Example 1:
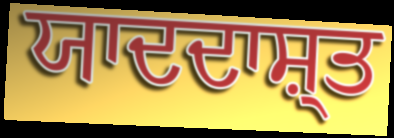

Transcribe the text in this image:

ਯਾਦਦਾਸ਼੍ਤ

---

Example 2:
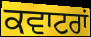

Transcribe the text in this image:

ਕਵਾਟਰਾਂ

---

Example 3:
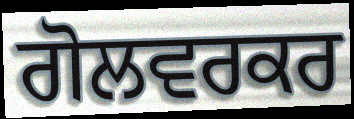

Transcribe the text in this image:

ਗੋਲਵਰਕਰ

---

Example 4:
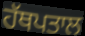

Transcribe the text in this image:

ਹੱਥਪਤਾਲ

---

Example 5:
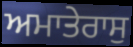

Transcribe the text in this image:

ਅਮਾਤੇਰਾਸੁ